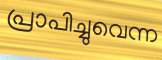
പ്രാപിച്ചുവെന്ന